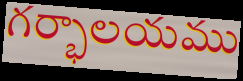
గర్భాలయము